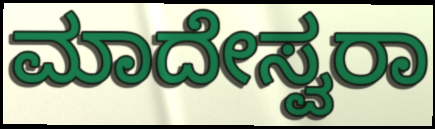
ಮಾದೇಸ್ವರಾ